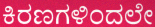
ಕಿರಣಗಳಿಂದಲೇ